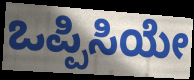
ಒಪ್ಪಿಸಿಯೇ